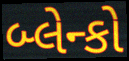
બ્લેન્કો